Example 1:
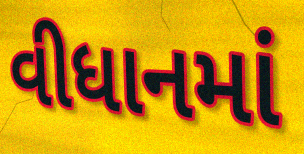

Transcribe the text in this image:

વીધાનમાં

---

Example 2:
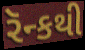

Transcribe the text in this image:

રૅન્કથી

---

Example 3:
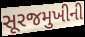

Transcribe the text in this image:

સૂરજમુખીની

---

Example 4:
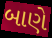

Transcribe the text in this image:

બાણે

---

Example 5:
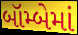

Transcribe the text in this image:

બૉમ્બેમાં